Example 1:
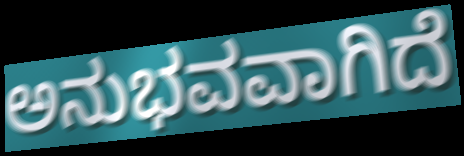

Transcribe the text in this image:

ಅನುಭವವಾಗಿದೆ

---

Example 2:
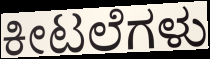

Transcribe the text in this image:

ಕೀಟಲೆಗಳು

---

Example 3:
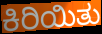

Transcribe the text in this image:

ಕಿರಿಯಿತು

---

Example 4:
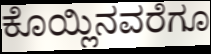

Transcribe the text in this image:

ಕೊಯ್ಲಿನವರೆಗೂ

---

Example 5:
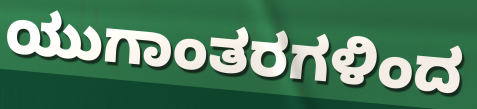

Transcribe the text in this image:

ಯುಗಾಂತರಗಳಿಂದ